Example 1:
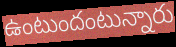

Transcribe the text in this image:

ఉంటుందంటున్నారు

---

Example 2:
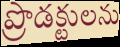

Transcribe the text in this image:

ప్రొడక్టులను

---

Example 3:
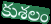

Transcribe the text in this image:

కుశలం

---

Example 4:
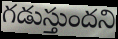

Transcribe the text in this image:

గడుస్తుందని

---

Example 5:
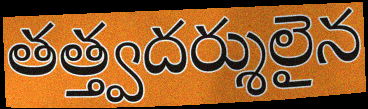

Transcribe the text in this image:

తత్త్వదర్శులైన